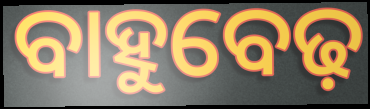
ବାହୁବେଢ଼